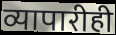
व्यापारीही